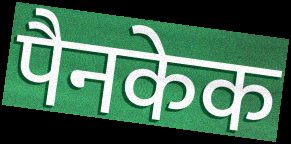
पैनकेक